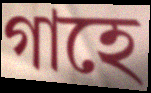
গাহে